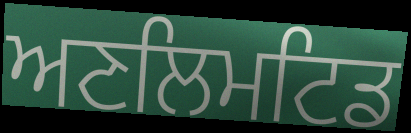
ਅਣਲਿਮਟਿਡ